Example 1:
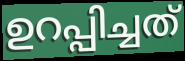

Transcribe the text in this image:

ഉറപ്പിച്ചത്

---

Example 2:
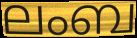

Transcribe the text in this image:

ലംബ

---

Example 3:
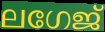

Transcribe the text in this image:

ലഗേജ്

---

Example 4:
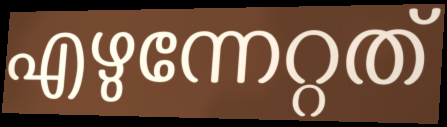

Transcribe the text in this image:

എഴുന്നേറ്റത്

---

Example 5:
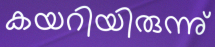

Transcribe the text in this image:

കയറിയിരുന്നു്